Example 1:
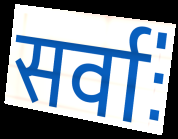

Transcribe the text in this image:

सर्वाः॑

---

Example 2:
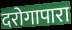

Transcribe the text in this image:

दरोगापारा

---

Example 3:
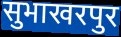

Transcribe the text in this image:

सुभाखरपुर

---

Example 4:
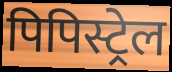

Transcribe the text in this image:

पिपिस्ट्रेल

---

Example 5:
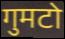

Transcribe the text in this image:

गुमटो